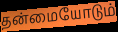
தன்மையோடும்